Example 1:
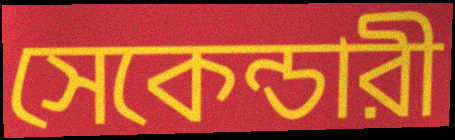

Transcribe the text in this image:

সেকেন্ডারী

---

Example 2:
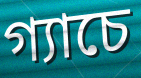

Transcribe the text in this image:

গ্যাচে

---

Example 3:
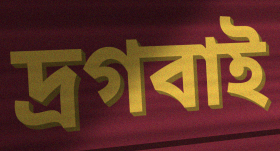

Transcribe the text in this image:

দ্রগবাই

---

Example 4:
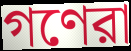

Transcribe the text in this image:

গণেরা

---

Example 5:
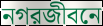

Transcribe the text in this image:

নগরজীবনে